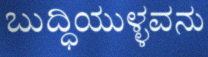
ಬುದ್ಧಿಯುಳ್ಳವನು